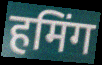
हमिंग